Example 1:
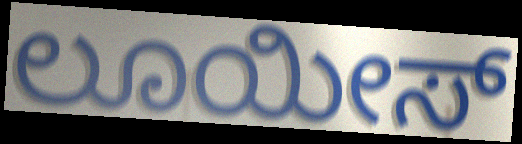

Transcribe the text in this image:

ಲೂಯೀಸ್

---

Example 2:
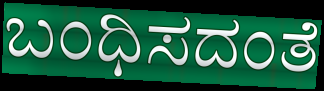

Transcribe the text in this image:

ಬಂಧಿಸದಂತೆ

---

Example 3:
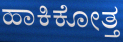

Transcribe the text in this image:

ಹಾಕಿಕೋತ್ತ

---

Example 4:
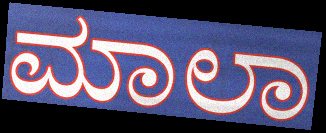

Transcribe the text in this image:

ಮಾಲಾ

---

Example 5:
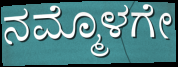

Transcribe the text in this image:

ನಮ್ಮೊಳಗೇ